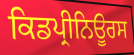
ਕਿਡਪ੍ਰੀਨਿਊਰਸ